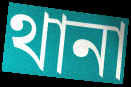
থানা